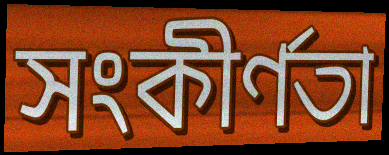
সংকীর্ণতা